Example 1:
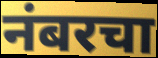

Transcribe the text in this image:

नंबरचा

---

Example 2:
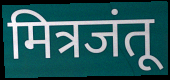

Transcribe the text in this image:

मित्रजंतू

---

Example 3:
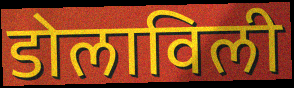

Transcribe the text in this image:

डोलाविली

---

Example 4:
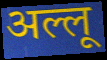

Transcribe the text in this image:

अल्लू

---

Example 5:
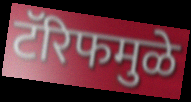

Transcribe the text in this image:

टॅरिफमुळे